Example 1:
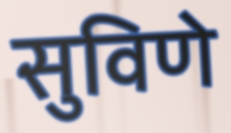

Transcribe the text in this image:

सुविणे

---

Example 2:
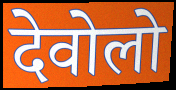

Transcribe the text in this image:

देवोलो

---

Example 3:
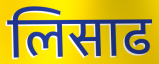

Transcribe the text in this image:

लिसाढ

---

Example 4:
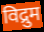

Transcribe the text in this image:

विद्रुम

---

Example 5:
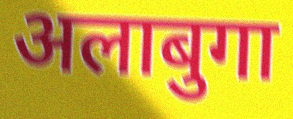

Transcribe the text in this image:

अलाबुगा